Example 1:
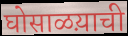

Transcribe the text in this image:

घोसाळय़ाची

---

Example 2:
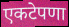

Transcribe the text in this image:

एकटेपणा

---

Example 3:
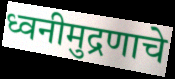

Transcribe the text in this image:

ध्वनीमुद्रणाचे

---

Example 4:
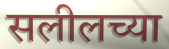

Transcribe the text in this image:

सलीलच्या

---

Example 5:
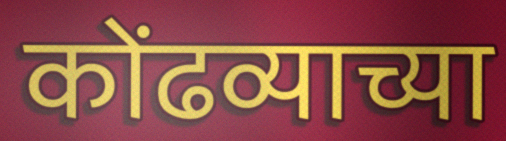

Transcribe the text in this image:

कोंढव्याच्या